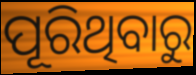
ପୂରିଥିବାରୁ